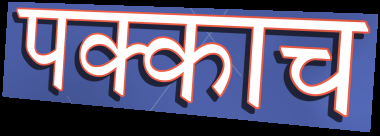
पक्काच